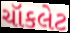
ચૉકલેટ